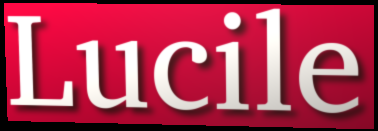
Lucile